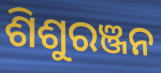
ଶିଶୁରଞ୍ଜନ